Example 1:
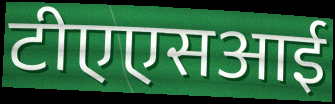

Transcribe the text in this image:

टीएएसआई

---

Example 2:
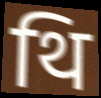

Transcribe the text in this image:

थि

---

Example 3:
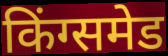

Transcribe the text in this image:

किंग्समेड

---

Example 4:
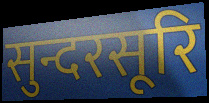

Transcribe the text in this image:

सुन्दरसूरि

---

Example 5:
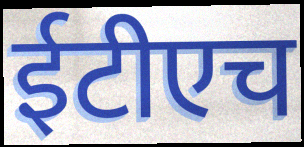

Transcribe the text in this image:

ईटीएच